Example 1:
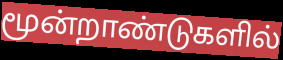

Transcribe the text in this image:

மூன்றாண்டுகளில்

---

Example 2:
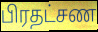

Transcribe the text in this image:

பிரதட்சண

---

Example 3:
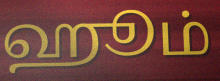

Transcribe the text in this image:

ஹூம்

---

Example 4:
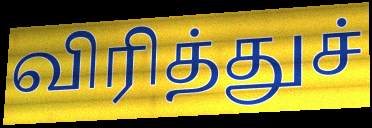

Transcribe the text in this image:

விரித்துச்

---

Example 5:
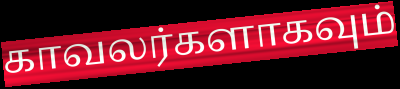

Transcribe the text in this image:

காவலர்களாகவும்